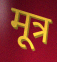
मूत्र